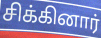
சிக்கினார்